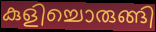
കുളിച്ചൊരുങ്ങി